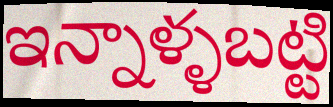
ఇన్నాళ్ళబట్టి